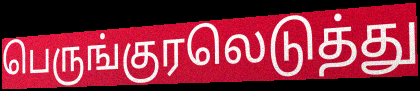
பெருங்குரலெடுத்து